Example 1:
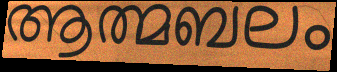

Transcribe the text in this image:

ആത്മബലം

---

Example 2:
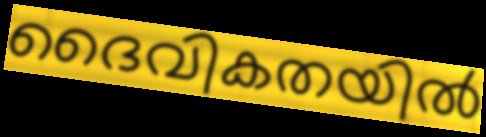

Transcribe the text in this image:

ദൈവികതയിൽ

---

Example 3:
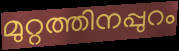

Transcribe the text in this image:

മുറ്റത്തിനപ്പുറം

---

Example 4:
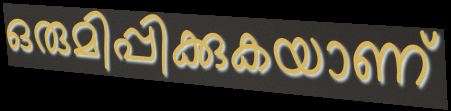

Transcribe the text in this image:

ഒരുമിപ്പിക്കുകയാണ്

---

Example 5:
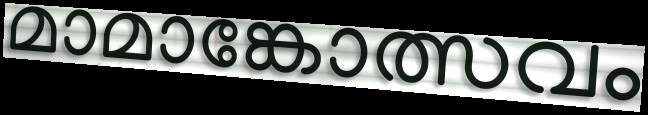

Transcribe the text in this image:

മാമാങ്കോത്സവം